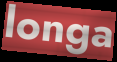
longa